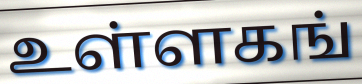
உள்ளகங்